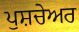
ਪੁਸ਼ਚੇਅਰ